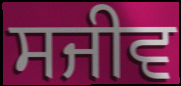
ਸਜੀਵ